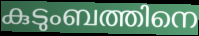
കുടുംബത്തിനെ